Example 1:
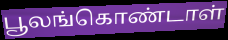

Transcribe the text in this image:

பூலங்கொண்டாள்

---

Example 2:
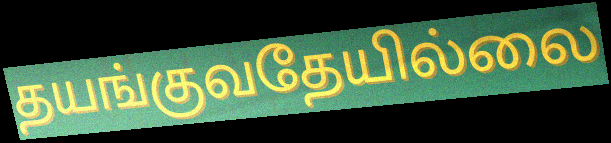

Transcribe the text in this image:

தயங்குவதேயில்லை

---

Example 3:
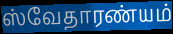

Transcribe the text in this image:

ஸ்வேதாரண்யம்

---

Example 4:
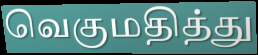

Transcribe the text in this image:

வெகுமதித்து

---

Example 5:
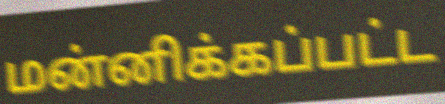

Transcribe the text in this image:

மன்னிக்கப்பட்ட